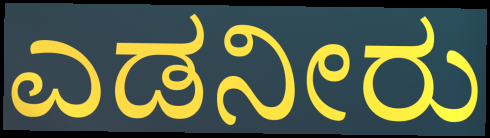
ಎಡನೀರು